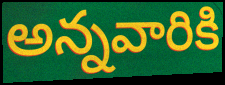
అన్నవారికి